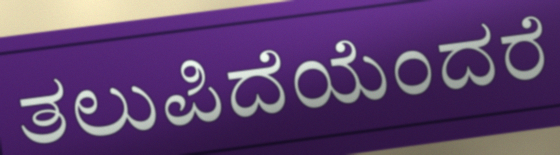
ತಲುಪಿದೆಯೆಂದರೆ